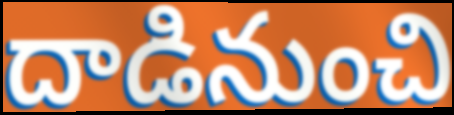
దాడినుంచి